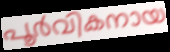
പൂർവികനായ